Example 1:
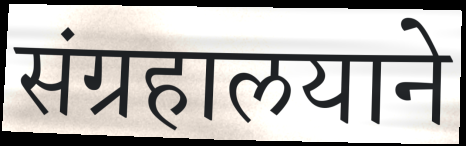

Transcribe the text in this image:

संग्रहालयाने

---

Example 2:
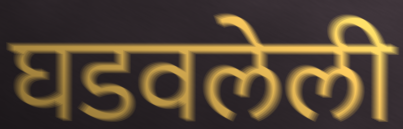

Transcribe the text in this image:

घडवलेली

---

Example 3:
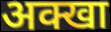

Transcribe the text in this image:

अक्खा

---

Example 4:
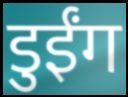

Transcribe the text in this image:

डुईंग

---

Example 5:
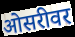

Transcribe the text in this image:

ओसरीवर